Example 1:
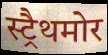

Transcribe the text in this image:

स्ट्रैथमोर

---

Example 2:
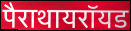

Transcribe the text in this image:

पैराथायरॉयड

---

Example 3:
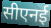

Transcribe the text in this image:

सीएनई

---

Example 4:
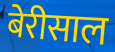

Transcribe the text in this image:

बेरीसाल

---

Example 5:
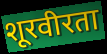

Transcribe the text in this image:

शूरवीरता